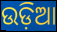
ଉଡ଼ିଆ